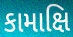
કામાક્ષિ